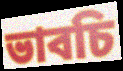
ভাবচি